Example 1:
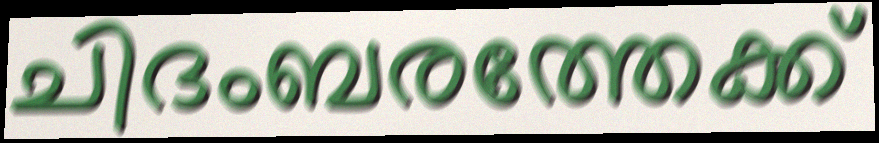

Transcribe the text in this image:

ചിദംബരത്തേക്ക്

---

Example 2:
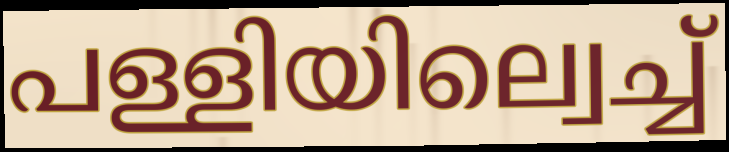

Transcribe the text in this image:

പള്ളിയില്വെച്ച്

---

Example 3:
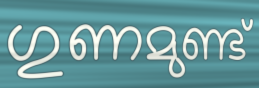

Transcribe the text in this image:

ഗുണമുണ്ട്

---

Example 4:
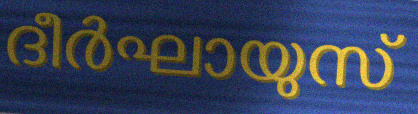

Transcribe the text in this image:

ദീർഘായുസ്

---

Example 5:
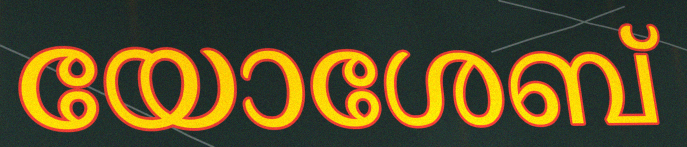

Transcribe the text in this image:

യോശേബ്